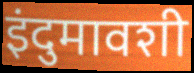
इंदुमावशी